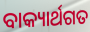
ବାକ୍ୟାର୍ଥଗତ